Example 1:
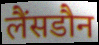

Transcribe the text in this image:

लैंसडौन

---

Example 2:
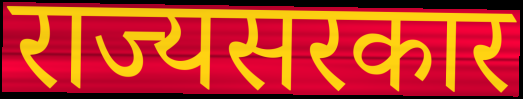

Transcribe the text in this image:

राज्यसरकार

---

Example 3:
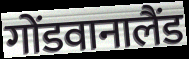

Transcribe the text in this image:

गोंडवानालैंड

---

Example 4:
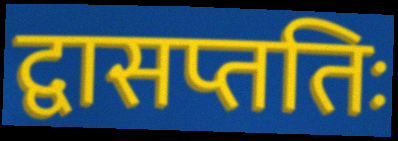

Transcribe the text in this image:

द्वासप्ततिः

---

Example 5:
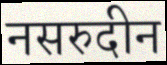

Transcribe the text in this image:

नसरुदीन